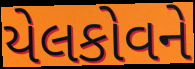
યેલકોવને